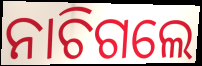
ନାଚିଗଲେ